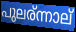
പുലര്ന്നാല്